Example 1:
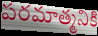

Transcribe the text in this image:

పరమాత్మనికి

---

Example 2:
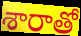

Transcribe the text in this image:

శారాతో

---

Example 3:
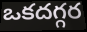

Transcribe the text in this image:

ఒకదగ్గర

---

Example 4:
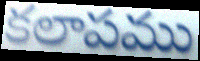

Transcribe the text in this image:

కలాపము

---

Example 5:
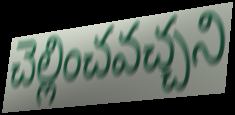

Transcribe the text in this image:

చెల్లించవచ్చని